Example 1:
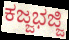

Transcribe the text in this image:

ಕಜ್ಜಭಜ್ಜಿ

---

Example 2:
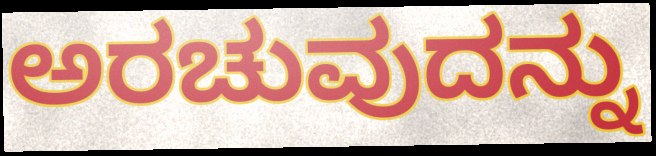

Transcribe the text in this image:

ಅರಚುವುದನ್ನು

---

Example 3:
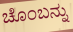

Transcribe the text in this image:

ಚೊಂಬನ್ನು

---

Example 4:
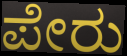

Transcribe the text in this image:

ಪೇರು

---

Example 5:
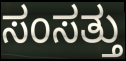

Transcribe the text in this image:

ಸಂಸತ್ತು